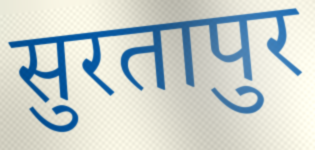
सुरतापुर